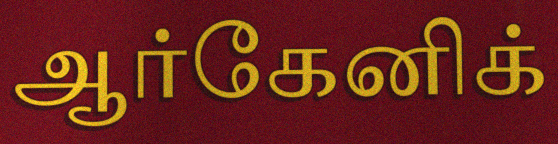
ஆர்கேனிக்